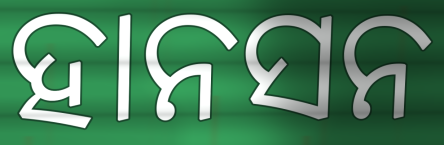
ହାନସନ